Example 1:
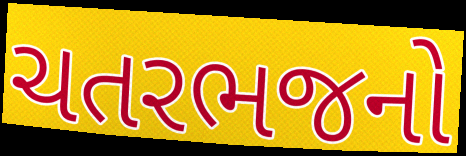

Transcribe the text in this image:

ચતરભજનો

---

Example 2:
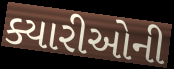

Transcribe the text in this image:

ક્યારીઓની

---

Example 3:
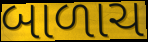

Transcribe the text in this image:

બાળાચ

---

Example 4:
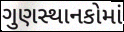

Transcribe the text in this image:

ગુણસ્થાનકોમાં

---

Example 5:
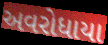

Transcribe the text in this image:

અવરોધાયા